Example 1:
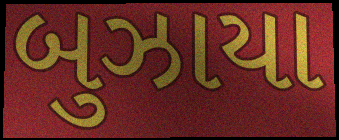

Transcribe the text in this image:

બુઝાયા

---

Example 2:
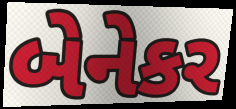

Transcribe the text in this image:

બેનેકર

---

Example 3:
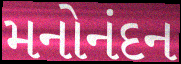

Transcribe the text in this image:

મનોનંદન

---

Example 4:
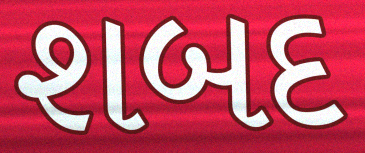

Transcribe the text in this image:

શબદ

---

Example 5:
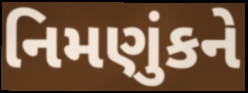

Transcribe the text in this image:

નિમણુંકને